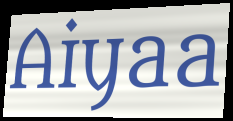
Aiyaa